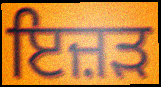
ਇਜ਼ੜ